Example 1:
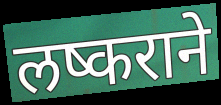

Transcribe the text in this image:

लष्कराने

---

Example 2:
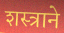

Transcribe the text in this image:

शस्त्राने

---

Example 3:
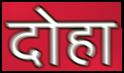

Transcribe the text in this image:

दोहा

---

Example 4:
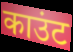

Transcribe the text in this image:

काउंट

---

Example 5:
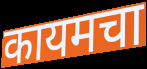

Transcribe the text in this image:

कायमचा